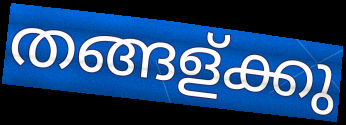
തങ്ങള്ക്കു